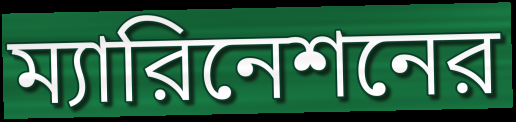
ম্যারিনেশনের